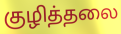
குழித்தலை